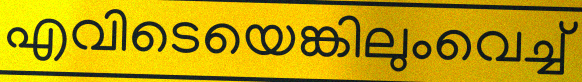
എവിടെയെങ്കിലുംവെച്ച്